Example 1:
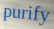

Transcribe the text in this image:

purify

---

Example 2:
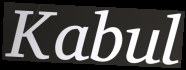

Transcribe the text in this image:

Kabul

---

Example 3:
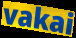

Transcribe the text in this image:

vakai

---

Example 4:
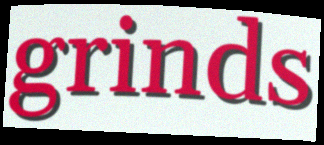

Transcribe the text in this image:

grinds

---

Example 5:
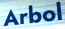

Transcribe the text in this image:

Arbol